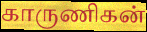
காருணிகன்